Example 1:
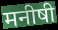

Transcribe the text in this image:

मनीषी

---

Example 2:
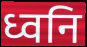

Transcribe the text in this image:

ध्वनि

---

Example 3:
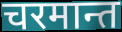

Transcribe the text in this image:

चरमान्त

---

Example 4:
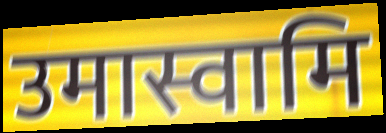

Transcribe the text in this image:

उमास्वामि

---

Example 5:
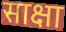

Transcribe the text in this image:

साक्षा